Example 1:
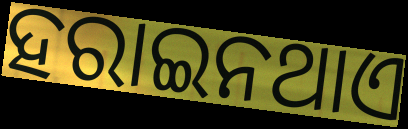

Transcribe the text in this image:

ହରାଇନଥାଏ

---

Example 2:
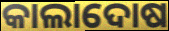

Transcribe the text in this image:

କାଲାଦୋଷ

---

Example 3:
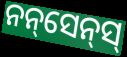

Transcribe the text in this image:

ନନ୍‌ସେନ୍‌ସ୍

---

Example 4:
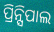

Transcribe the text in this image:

ପ୍ରିନ୍ସିପାଲ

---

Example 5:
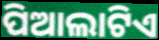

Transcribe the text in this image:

ପିଆଲାଟିଏ